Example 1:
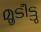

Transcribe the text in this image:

മൂടീട്ടു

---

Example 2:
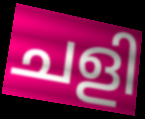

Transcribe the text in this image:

ചളി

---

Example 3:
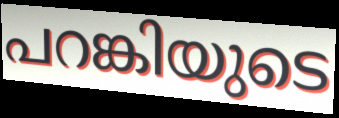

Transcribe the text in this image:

പറങ്കിയുടെ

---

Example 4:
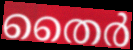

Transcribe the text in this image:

തൈർ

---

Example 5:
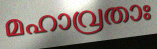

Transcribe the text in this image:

മഹാവ്രതാഃ